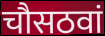
चौसठवां